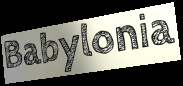
Babylonia